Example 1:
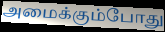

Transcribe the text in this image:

அமைக்கும்போது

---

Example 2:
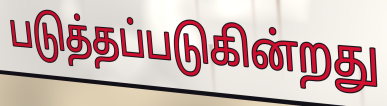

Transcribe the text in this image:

படுத்தப்படுகின்றது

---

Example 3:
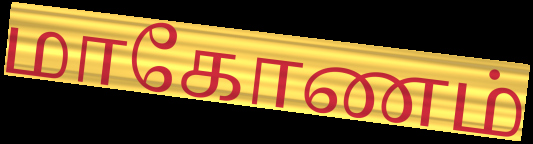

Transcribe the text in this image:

மாகோணம்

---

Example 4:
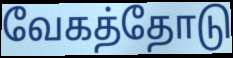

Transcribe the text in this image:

வேகத்தோடு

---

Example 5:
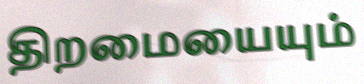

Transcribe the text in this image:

திறமையையும்